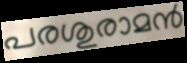
പരശുരാമൻ